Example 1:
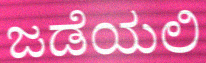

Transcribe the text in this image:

ಜಡೆಯಲಿ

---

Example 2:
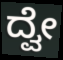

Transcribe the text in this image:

ದ್ವೇ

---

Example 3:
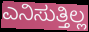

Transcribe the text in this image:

ಎನಿಸುತ್ತಿಲ್ಲ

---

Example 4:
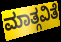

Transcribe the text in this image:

ಮಾತ್ಗವಿತೆ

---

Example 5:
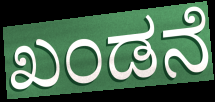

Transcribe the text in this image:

ಖಂಡನೆ